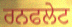
ਰਨਫਲੇਟ